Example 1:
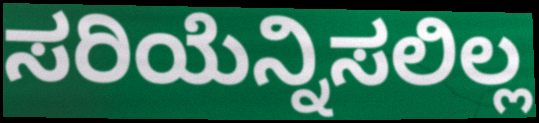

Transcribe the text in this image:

ಸರಿಯೆನ್ನಿಸಲಿಲ್ಲ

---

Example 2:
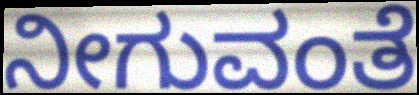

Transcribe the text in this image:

ನೀಗುವಂತೆ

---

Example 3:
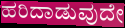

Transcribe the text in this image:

ಹರಿದಾಡುವುದೇ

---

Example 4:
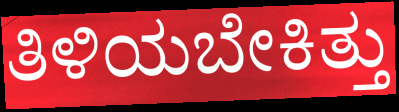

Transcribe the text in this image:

ತಿಳಿಯಬೇಕಿತ್ತು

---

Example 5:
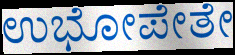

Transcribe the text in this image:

ಉಭೋಪೇತೇ